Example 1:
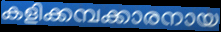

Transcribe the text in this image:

കളിക്കമ്പക്കാരനായ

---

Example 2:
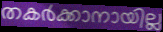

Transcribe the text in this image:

തകർക്കാനായില്ല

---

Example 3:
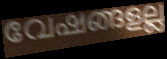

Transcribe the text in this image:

വേഷങ്ങളല്ല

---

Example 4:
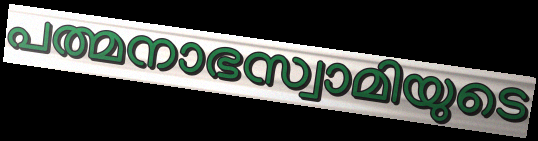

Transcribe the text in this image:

പത്മനാഭസ്വാമിയുടെ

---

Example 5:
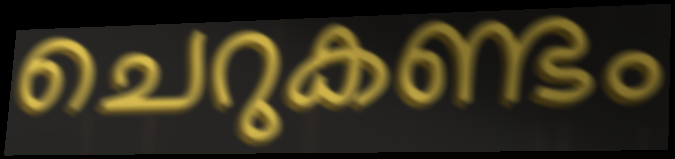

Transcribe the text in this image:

ചെറുകണ്ടം